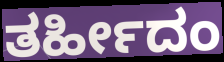
ತರ್ಹೀದಂ